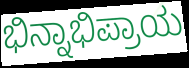
ಭಿನ್ನಾಭಿಪ್ರಾಯ